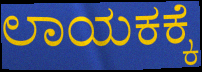
ಲಾಯಕಕ್ಕೆ